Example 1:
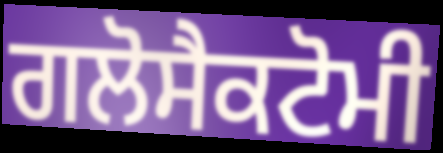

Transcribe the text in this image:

ਗਲੋਸੈਕਟੋਮੀ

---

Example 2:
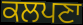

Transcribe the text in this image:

ਕਲਪਣਾ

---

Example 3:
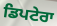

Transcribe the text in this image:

ਡਿਪਟੇਰਾ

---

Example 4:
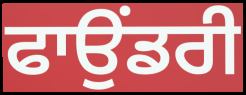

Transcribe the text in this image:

ਫਾਉਂਡਰੀ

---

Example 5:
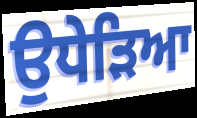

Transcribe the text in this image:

ਉਧੇੜਿਆ